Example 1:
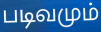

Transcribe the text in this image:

படிவமும்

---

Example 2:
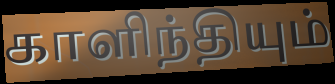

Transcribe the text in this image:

காளிந்தியும்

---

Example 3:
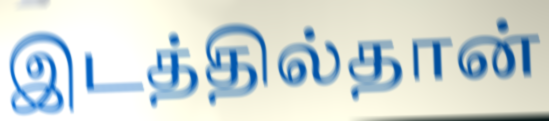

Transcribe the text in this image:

இடத்தில்தான்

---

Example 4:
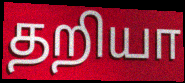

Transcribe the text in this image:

தறியா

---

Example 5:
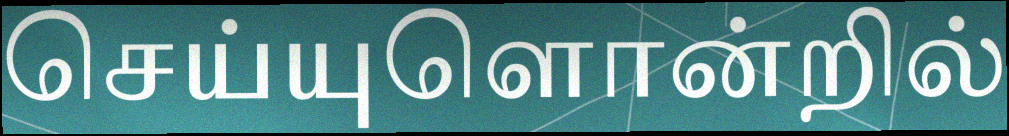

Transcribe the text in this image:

செய்யுளொன்றில்